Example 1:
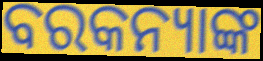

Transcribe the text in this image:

ବରକନ୍ୟାଙ୍କ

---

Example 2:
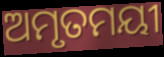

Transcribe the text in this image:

ଅମୃତମୟୀ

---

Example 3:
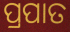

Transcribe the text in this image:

ପ୍ରପାତ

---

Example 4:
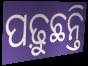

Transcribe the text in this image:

ପଢ଼ୁଛନ୍ତି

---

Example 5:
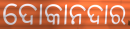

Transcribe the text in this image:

ଦୋକାନଦାର